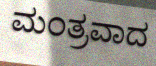
ಮಂತ್ರವಾದ